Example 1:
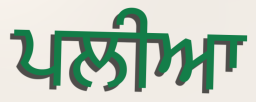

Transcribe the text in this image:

ਪਲੀਆ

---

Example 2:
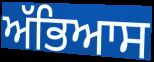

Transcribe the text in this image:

ਅੱਭਿਆਸ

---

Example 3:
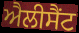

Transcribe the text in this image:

ਐਲੀਸੈਂਟ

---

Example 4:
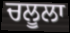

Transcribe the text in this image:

ਚਲੂਲਾ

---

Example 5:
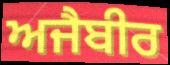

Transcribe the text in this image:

ਅਜੈਬੀਰ